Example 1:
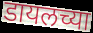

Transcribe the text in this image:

डायलच्या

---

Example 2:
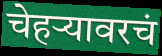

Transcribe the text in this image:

चेहर्‍यावरचं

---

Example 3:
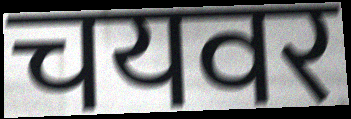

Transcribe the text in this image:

चयवर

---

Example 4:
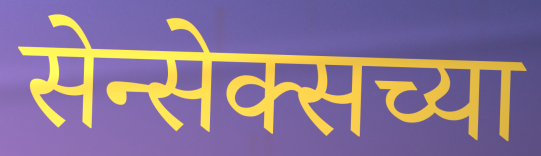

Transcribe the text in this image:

सेन्सेक्सच्या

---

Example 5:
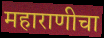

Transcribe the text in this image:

महाराणीचा